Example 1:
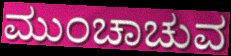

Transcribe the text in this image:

ಮುಂಚಾಚುವ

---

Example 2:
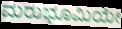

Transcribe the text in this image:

ಮರುಭೂಮಿಯೇ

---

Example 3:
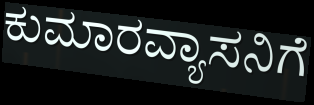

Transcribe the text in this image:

ಕುಮಾರವ್ಯಾಸನಿಗೆ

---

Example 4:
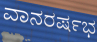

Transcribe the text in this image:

ವಾನರರ್ಷಭ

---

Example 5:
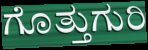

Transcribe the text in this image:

ಗೊತ್ತುಗುರಿ